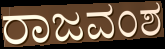
ರಾಜವಂಶ